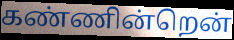
கண்ணின்றென்